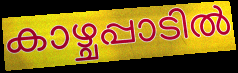
കാഴ്ചപ്പാടിൽ